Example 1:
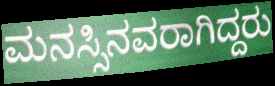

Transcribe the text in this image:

ಮನಸ್ಸಿನವರಾಗಿದ್ದರು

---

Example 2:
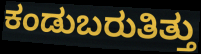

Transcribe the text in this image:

ಕಂಡುಬರುತಿತ್ತು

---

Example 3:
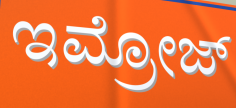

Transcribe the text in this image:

ಇಮ್ರೋಜ್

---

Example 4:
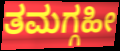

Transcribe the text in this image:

ತಮಗ್ಗಹೀ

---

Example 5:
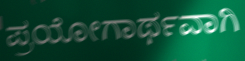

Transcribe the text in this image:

ಪ್ರಯೋಗಾರ್ಥವಾಗಿ